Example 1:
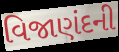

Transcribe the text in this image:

વિજાણંદની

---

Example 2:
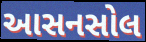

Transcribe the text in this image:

આસનસોલ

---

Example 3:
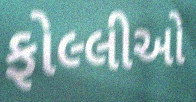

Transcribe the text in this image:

ફોલ્લીઓ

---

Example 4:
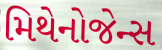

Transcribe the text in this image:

મિથેનોજેન્સ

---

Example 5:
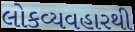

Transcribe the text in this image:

લોકવ્યવહારથી